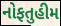
નોફતુહીમ